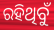
ରହିଥିବୁଁ